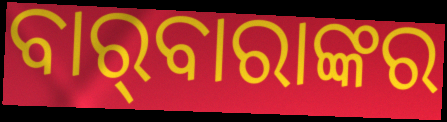
ବାର୍‌ବାରାଙ୍କର